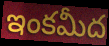
ఇంకమీద